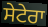
ਸੇਟੇਰਾ